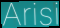
Arisi